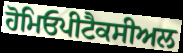
ਹੋਮਿਓਪੀਟੈਕਸੀਅਲ